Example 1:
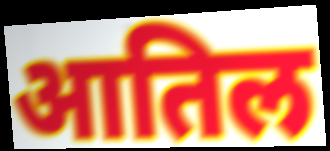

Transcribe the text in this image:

आतिल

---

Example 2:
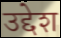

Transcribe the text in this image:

उद्देश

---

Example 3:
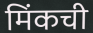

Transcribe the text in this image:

मिंकची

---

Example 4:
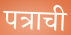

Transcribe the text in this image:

पत्राची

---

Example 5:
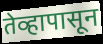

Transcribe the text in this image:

तेव्हापासून